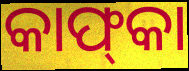
କାଫ୍‍କା